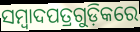
ସମ୍ୱାଦପତ୍ରଗୁଡ଼ିକରେ